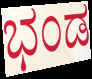
ಭಂಡ